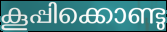
കൂപ്പിക്കൊണ്ടു